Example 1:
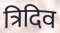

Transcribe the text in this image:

त्रिदिव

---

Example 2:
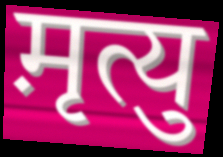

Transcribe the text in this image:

म़ृत्यु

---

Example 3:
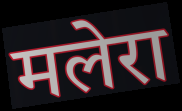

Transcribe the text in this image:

मलेरा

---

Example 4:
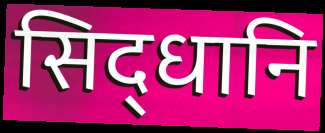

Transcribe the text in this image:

सिद्धानि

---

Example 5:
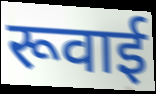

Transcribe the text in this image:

रूवाई